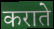
कराते